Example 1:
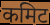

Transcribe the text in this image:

कमिट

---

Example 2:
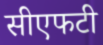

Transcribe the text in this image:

सीएफटी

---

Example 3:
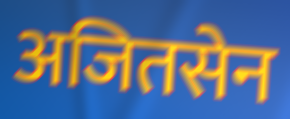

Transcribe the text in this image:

अजितसेन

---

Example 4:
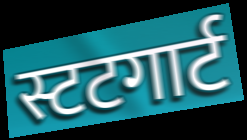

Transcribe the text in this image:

स्टटगार्ट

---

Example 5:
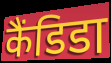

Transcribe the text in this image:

कैंडिडा